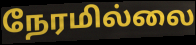
நேரமில்லை